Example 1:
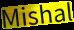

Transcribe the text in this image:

Mishal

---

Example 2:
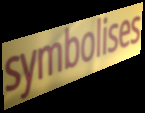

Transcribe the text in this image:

symbolises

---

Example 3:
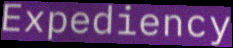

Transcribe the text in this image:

Expediency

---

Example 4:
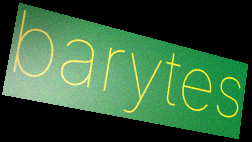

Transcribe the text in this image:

barytes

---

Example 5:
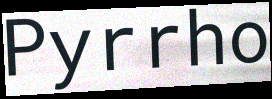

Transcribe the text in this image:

Pyrrho